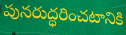
పునరుద్ధరించటానికి